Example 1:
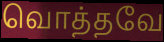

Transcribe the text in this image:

வொத்தவே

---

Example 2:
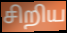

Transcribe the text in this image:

சிறிய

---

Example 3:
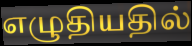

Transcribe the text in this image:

எழுதியதில்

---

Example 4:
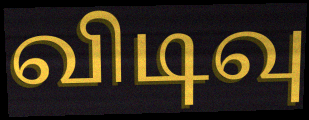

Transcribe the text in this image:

விடிவு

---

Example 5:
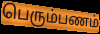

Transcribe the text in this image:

பெரும்பணம்